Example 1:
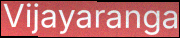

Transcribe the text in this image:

Vijayaranga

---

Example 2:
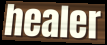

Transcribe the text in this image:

healer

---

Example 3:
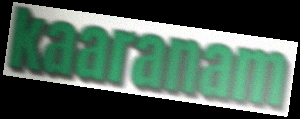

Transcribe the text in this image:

kaaranam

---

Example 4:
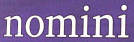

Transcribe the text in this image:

nomini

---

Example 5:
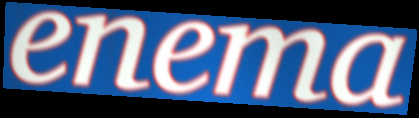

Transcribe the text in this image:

enema